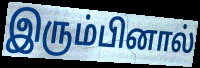
இரும்பினால்